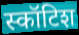
स्कॉटिश